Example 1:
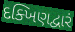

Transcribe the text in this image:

દક્ખિણદ્વારં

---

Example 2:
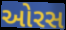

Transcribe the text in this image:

ઓરસ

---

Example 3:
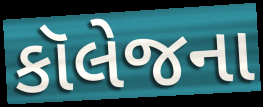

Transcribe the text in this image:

કૉલેજના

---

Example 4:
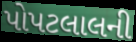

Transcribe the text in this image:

પોપટલાલની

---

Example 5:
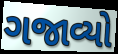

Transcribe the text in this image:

ગજાવ્યો